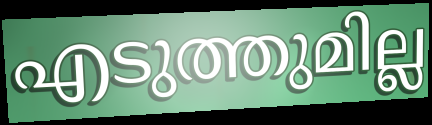
എടുത്തുമില്ല